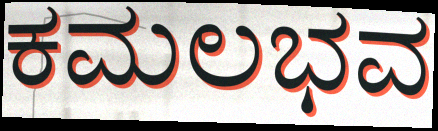
ಕಮಲಭವ